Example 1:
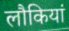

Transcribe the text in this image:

लौकियां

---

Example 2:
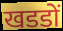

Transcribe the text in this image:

खडडों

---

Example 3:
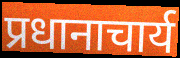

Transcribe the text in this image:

प्रधानाचार्य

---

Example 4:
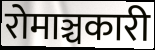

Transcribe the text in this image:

रोमाञ्चकारी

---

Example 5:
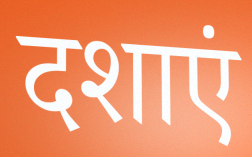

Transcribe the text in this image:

दशाएं